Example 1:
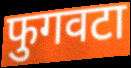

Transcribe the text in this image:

फुगवटा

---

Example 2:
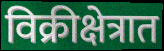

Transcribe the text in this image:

विक्रीक्षेत्रात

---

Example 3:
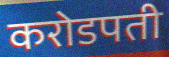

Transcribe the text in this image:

करोडपती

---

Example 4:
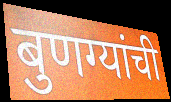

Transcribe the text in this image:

बुणग्यांची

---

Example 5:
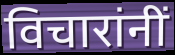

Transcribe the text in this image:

विचारांनीं